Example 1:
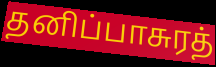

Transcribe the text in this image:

தனிப்பாசுரத்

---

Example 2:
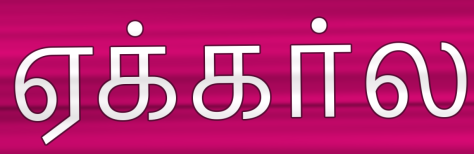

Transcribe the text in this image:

ஏக்கர்ல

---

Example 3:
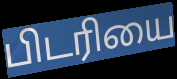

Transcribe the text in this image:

பிடரியை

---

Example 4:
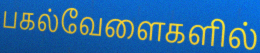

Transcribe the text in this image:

பகல்வேளைகளில்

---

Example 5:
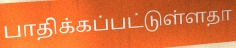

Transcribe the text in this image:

பாதிக்கப்பட்டுள்ளதா